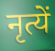
नृत्यें